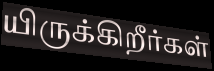
யிருக்கிறீர்கள்